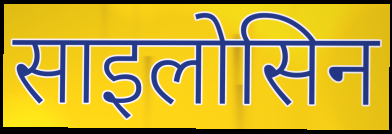
साइलोसिन